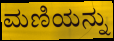
ಮಣಿಯನ್ನು